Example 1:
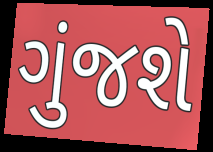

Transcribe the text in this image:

ગુંજશે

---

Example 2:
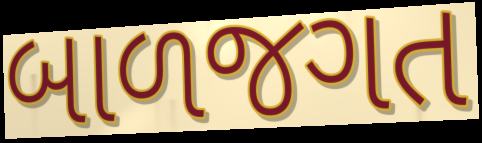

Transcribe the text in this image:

બાળજગત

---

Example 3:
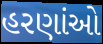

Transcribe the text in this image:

હરણાંઓ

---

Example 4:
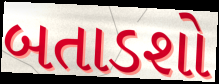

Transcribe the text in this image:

બતાડશો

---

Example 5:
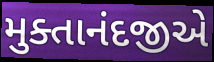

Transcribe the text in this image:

મુક્તાનંદજીએ